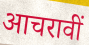
आचरावीं